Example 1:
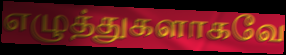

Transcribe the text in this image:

எழுத்துகளாகவே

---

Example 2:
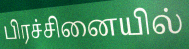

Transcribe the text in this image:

பிரச்சினையில்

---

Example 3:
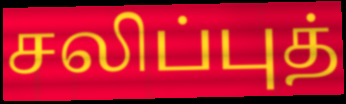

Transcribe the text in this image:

சலிப்புத்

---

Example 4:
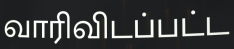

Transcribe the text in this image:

வாரிவிடப்பட்ட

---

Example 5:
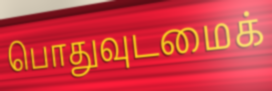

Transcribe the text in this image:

பொதுவுடமைக்